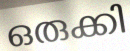
ഒരുക്കി